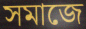
সমাজে